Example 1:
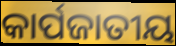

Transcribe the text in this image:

କାର୍ପଜାତୀୟ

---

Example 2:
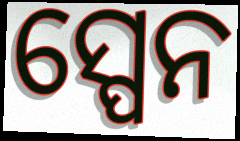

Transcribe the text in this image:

ସ୍ପେନ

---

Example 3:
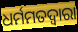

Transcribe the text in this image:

ଧର୍ମମତଦ୍ୱାରା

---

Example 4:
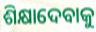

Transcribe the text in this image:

ଶିକ୍ଷାଦେବାକୁ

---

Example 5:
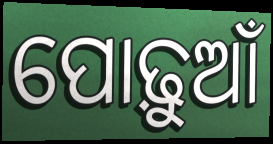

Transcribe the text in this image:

ପୋଢ଼ୁଆଁ